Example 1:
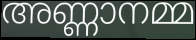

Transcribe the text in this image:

അണ്ണാനമ്മ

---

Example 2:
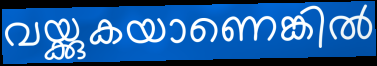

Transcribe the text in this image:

വയ്ക്കുകയാണെങ്കിൽ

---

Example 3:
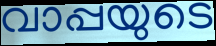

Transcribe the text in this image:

വാപ്പയുടെ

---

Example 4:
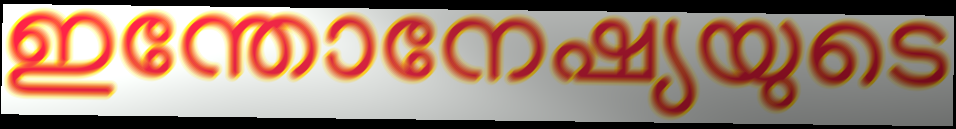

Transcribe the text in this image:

ഇന്തോനേഷ്യയുടെ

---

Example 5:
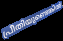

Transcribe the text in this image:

പ്രീതിയുണ്ടെങ്കിൽ